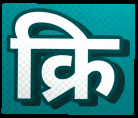
क्रि